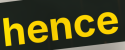
hence